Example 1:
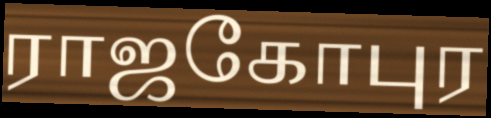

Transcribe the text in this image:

ராஜகோபுர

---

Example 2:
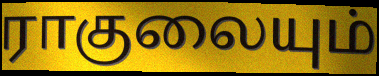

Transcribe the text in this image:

ராகுலையும்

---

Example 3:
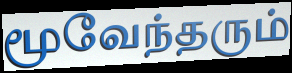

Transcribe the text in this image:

மூவேந்தரும்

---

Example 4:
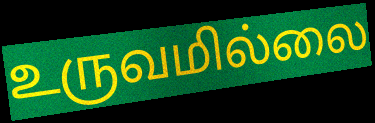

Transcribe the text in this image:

உருவமில்லை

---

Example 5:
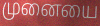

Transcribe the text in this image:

முனையை